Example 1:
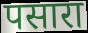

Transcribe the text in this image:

पसारा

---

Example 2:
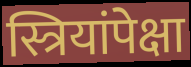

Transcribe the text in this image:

स्त्रियांपेक्षा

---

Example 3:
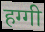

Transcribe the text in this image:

हग्गी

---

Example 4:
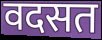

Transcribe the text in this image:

वदसत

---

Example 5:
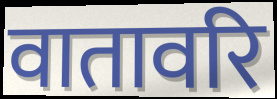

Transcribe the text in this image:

वातावरि